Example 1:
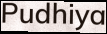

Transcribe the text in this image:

Pudhiya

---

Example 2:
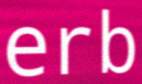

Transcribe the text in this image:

erb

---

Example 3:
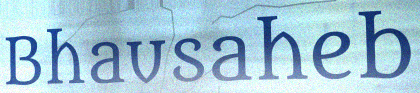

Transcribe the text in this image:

Bhausaheb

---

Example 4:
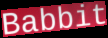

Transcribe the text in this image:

Babbit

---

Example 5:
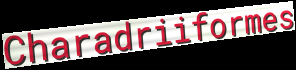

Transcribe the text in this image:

Charadriiformes